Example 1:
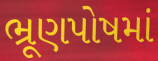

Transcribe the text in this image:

ભ્રૂણપોષમાં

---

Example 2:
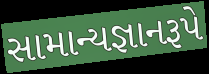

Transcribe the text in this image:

સામાન્યજ્ઞાનરૂપે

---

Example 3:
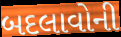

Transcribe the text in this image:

બદલાવોની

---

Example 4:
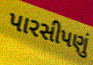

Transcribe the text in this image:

પારસીપણું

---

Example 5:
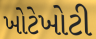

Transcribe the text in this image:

ખોટેખોટી